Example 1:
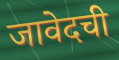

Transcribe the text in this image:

जावेदची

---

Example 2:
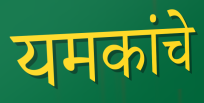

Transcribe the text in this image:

यमकांचे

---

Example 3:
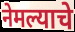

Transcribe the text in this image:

नेमल्याचे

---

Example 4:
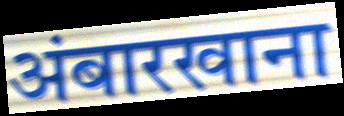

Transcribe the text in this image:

अंबारखाना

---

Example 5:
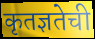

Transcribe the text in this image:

कृतज्ञतेची